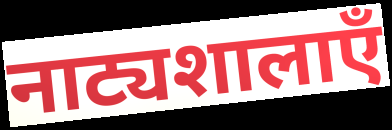
नाट्यशालाएँ